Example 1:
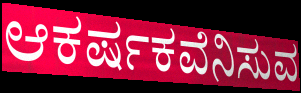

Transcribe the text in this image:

ಆಕರ್ಷಕವೆನಿಸುವ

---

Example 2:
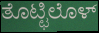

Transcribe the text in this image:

ತೊಟ್ಟಿಲೊಳ್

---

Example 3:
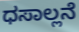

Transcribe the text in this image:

ಧಸಾಲ್ಲನೆ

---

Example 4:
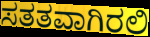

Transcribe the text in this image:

ಸತತವಾಗಿರಲಿ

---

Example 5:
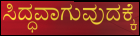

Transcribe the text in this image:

ಸಿದ್ಧವಾಗುವುದಕ್ಕೆ